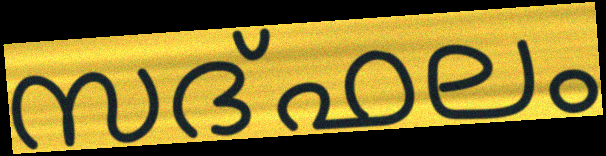
സദ്ഫലം